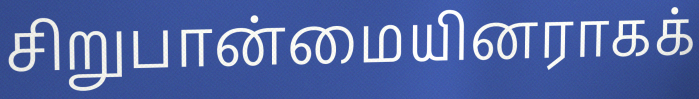
சிறுபான்மையினராகக்